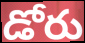
డోరు